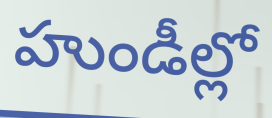
హుండీల్లో